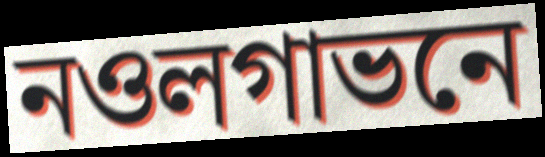
নওলগাভনে